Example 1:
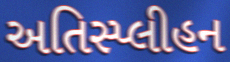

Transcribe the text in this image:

અતિસ્પ્લીહન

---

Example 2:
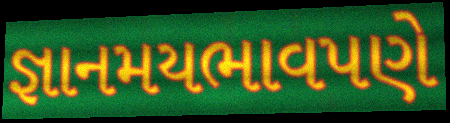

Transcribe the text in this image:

જ્ઞાનમયભાવપણે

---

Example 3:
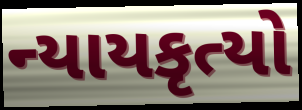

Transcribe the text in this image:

ન્યાયકૃત્યો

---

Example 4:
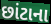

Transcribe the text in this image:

છાંટાના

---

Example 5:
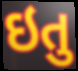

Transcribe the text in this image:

ઇતુ